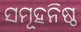
ସମୂହନିଷ୍ଠ